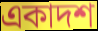
একাদশ